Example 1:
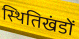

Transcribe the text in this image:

स्थितिखंडों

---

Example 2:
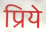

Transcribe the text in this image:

प्रिये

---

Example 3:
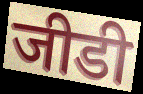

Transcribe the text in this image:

जीडी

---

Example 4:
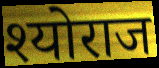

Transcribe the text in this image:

श्योराज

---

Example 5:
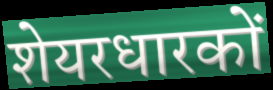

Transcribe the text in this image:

शेयरधारकों